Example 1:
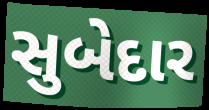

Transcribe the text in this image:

સુબેદાર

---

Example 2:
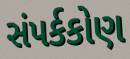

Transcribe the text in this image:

સંપર્કકોણ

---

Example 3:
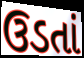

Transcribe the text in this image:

ઉડતાં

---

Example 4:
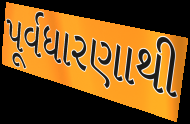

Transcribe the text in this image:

પૂર્વધારણાથી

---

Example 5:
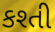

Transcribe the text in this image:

કશ્તી